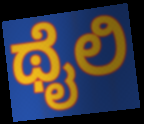
ಥೈಲಿ